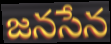
జనసేన